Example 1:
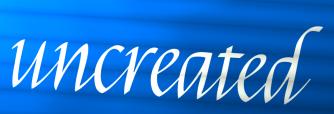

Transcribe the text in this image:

uncreated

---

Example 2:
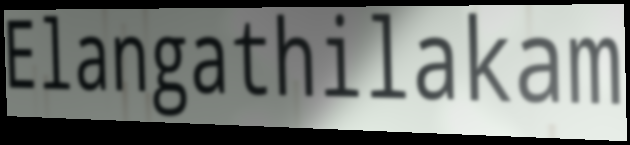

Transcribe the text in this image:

Elangathilakam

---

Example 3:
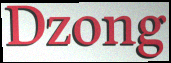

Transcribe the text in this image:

Dzong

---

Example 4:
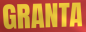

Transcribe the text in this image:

GRANTA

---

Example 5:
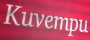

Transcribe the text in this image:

Kuvempu